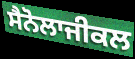
ਸੈਨੋਲਾਜੀਕਲ